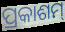
ପ୍ରକାଶମ୍